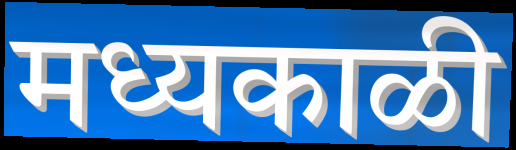
मध्यकाळी